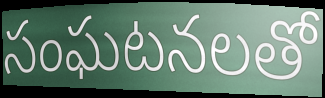
సంఘటనలతో